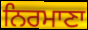
ਨਿਰਮਾਣਾ